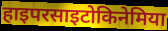
हाइपरसाइटोकिनेमिया